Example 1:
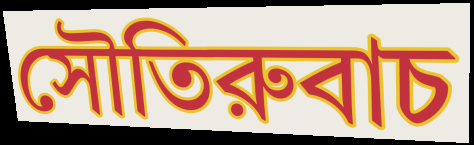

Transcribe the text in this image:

সৌতিরুবাচ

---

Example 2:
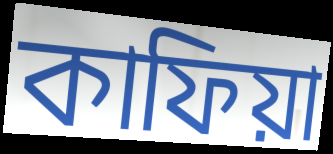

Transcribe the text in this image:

কাফিয়া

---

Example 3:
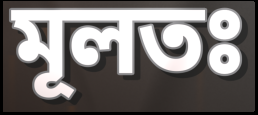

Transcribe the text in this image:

মূলতঃ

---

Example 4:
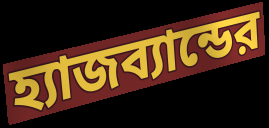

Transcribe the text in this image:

হ্যাজব্যান্ডের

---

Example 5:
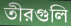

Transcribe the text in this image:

তীরগুলি